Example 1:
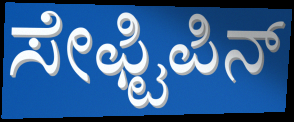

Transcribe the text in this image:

ಸೇಫ್ಟಿಪಿನ್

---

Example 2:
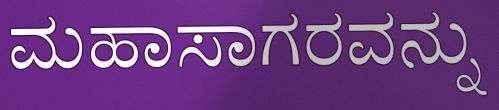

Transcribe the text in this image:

ಮಹಾಸಾಗರವನ್ನು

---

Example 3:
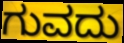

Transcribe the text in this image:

ಗುವದು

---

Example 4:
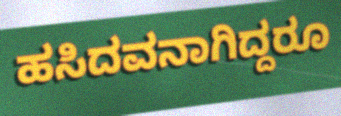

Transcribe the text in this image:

ಹಸಿದವನಾಗಿದ್ದರೂ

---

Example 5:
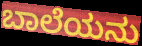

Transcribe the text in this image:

ಬಾಲೆಯನು